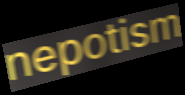
nepotism